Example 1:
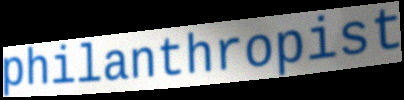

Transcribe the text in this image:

philanthropist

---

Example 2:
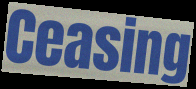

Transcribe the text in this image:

Ceasing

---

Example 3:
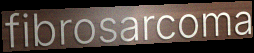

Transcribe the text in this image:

fibrosarcoma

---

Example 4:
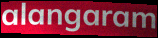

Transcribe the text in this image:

alangaram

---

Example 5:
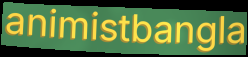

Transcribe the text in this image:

animistbangla